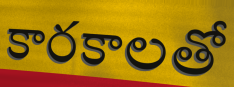
కారకాలతో